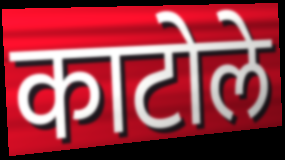
काटोले